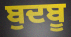
ਬੁਦਬੂ